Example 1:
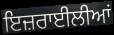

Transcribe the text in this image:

ਇਜ਼ਰਾਈਲੀਆਂ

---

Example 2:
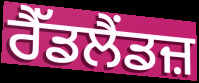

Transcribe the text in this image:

ਰੈੱਡਲੈਂਡਜ਼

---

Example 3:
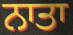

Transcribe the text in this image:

ਨਾਤਾ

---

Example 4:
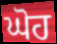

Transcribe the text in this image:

ਘੋਹ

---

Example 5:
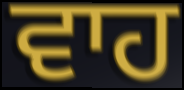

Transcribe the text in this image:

ਵਾਹ